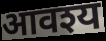
आवश्य